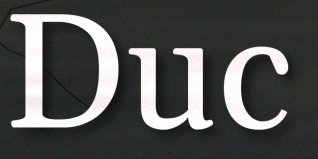
Duc